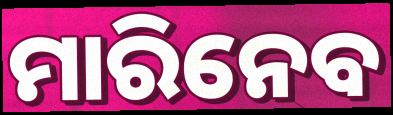
ମାରିନେବ